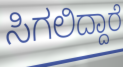
ಸಿಗಲಿದ್ದಾರೆ